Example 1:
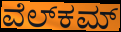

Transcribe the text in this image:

ವೆಲ್‍ಕಮ್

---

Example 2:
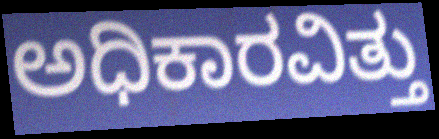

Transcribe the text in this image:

ಅಧಿಕಾರವಿತ್ತು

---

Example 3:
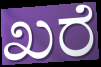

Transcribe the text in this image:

ಖರೆ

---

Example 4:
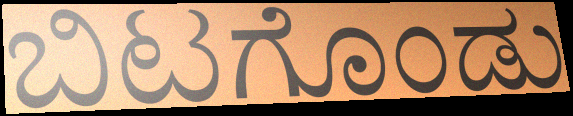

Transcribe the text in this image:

ಬಿಟಗೊಂಡು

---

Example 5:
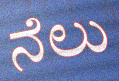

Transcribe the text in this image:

ನೆಲು